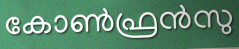
കോൺഫ്രൻസു